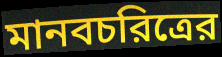
মানবচরিত্রের